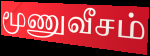
மூணுவீசம்